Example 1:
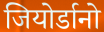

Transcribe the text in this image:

जियोर्डानो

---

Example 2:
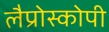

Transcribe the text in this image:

लैप्रोस्कोपी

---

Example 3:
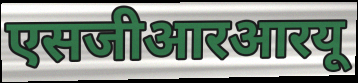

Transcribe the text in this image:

एसजीआरआरयू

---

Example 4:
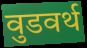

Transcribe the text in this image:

वुडवर्थ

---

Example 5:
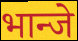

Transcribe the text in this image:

भान्जे